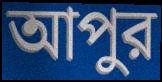
আপুর